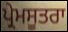
ਪ੍ਰੇਮਸੂਤਰਾ